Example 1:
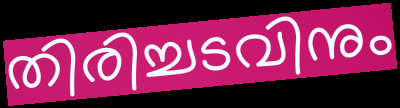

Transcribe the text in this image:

തിരിച്ചടവിനും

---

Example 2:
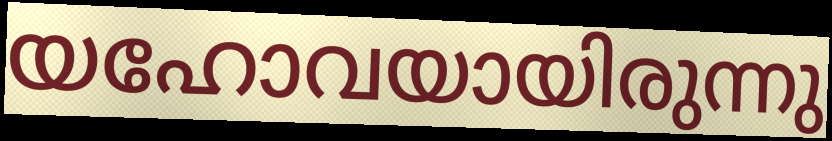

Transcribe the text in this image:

യഹോവയായിരുന്നു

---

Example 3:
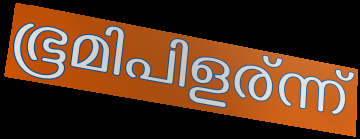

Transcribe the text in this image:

ഭൂമിപിളര്ന്ന്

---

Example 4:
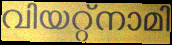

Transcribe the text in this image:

വിയറ്റ്നാമി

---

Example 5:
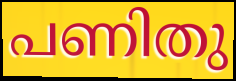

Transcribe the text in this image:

പണിതു